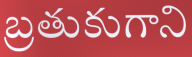
బ్రతుకుగాని